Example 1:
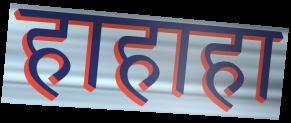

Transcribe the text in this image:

हाहाहा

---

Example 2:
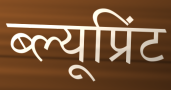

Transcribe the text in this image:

ब्ल्यूप्रिंट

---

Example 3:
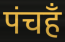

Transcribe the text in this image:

पंचहँ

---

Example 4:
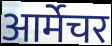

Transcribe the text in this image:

आर्मेचर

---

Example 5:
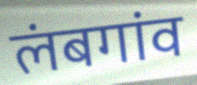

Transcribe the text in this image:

लंबगांव